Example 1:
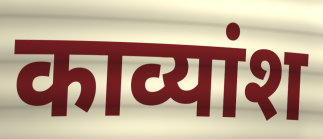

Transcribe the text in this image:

काव्यांश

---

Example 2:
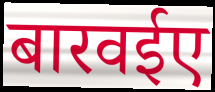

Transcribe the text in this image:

बारवईए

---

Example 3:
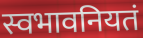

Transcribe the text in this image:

स्वभावनियतं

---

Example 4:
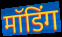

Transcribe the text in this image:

मॉडिंग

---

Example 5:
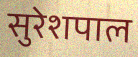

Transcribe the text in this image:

सुरेशपाल